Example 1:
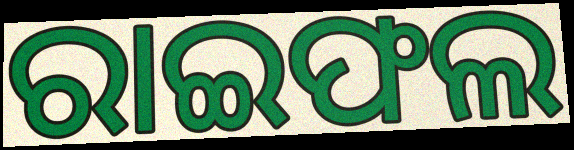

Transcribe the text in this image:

ରାଇଫଲ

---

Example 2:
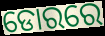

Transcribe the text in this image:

ଡୋରରେ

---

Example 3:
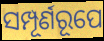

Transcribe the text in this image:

ସମ୍ପୂର୍ଣରୂପେ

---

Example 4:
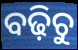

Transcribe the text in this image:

ବଢ଼ିଚୁ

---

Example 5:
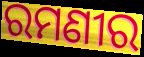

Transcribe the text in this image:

ରମଣୀର